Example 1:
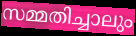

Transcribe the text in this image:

സമ്മതിച്ചാലും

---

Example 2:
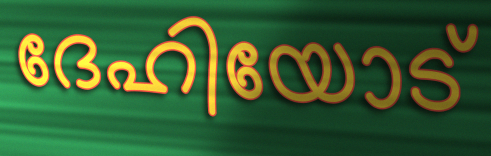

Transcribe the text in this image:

ദേഹിയോട്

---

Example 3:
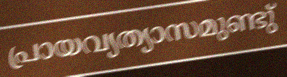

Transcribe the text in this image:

പ്രായവ്യത്യാസമുണ്ടു്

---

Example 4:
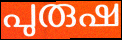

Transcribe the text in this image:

പുരുഷ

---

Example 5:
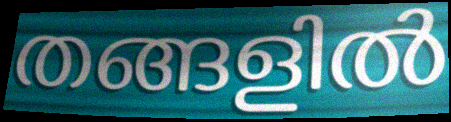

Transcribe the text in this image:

തങ്ങളിൽ